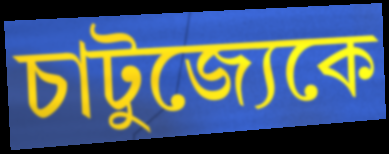
চাটুজ্যেকে